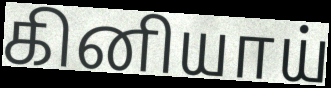
கினியாய்